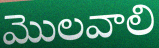
మొలవాలి